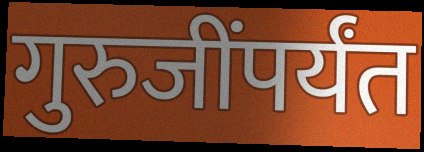
गुरुजींपर्यंत